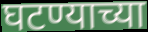
घटण्याच्या